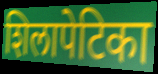
शिलापेटिका